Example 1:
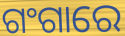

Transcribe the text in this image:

ଗଂଗାରେ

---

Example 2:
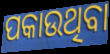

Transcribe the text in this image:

ପକାଉଥିବା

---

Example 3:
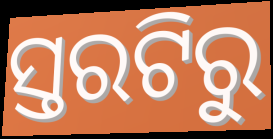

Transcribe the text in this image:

ସ୍ତରଟିରୁ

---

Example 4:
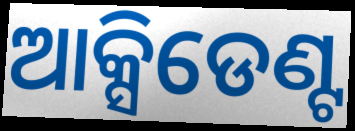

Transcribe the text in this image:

ଆକ୍ସିଡେଣ୍ଟ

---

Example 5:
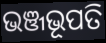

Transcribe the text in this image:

ଭଞ୍ଜଭୂପତି